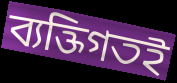
ব্যক্তিগতই